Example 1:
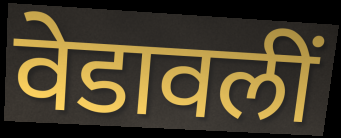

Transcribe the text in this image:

वेडावलीं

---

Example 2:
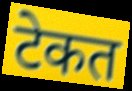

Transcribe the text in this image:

टेकत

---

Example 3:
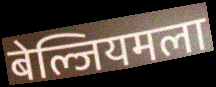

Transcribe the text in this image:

बेल्जियमला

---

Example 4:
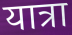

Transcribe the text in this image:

यात्रा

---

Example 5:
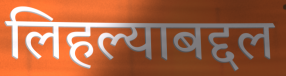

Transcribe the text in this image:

लिहल्याबद्दल